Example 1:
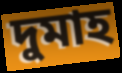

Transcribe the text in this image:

দুমাহ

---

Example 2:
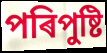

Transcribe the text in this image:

পৰিপুষ্টি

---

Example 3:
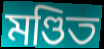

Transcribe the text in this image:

মণ্ডিত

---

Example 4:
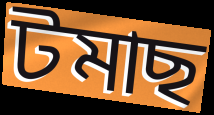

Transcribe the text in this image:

টমাছ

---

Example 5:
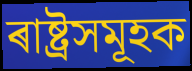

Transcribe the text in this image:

ৰাষ্ট্ৰসমূহক